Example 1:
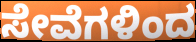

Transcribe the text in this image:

ಸೇವೆಗಳಿಂದ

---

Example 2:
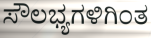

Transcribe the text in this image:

ಸೌಲಭ್ಯಗಳಿಗಿಂತ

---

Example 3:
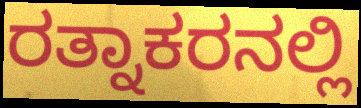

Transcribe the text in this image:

ರತ್ನಾಕರನಲ್ಲಿ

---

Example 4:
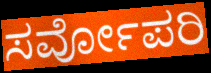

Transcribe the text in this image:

ಸರ್ವೋಪರಿ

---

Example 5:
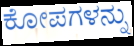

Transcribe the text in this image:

ಕೋಪಗಳನ್ನು